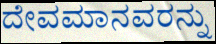
ದೇವಮಾನವರನ್ನು